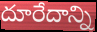
దూరేదాన్ని